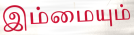
இம்மையும்